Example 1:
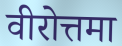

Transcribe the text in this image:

वीरोत्तमा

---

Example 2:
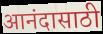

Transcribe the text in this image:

आनंदासाठी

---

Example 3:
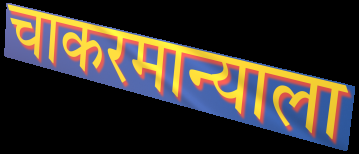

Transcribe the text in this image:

चाकरमान्याला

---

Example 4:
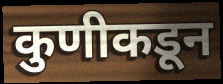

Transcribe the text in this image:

कुणीकडून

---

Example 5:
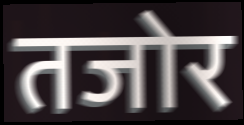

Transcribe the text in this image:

तजोर